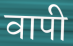
वापी